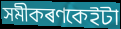
সমীকৰণকেইটা